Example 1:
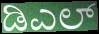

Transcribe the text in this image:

ಡಿಎಲ್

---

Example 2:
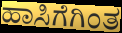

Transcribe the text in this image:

ಹಾಸಿಗೆಗಿಂತ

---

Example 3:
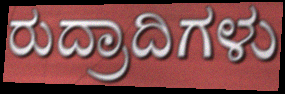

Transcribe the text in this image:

ರುದ್ರಾದಿಗಳು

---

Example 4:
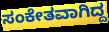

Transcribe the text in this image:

ಸಂಕೇತವಾಗಿದ್ದ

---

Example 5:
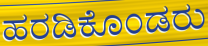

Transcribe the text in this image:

ಹರಡಿಕೊಂಡರು